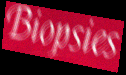
Biopsies